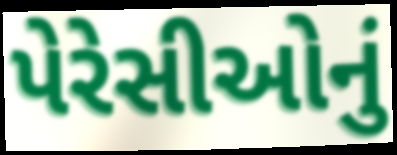
પેરેસીઓનું